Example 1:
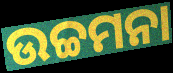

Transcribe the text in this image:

ଉଚ୍ଚମନା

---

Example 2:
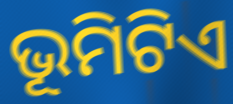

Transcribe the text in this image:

ଭୂମିଟିଏ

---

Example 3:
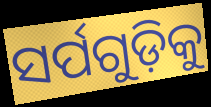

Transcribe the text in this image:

ସର୍ପଗୁଡ଼ିକୁ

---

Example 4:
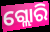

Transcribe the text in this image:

ଗ୍ଲୋରି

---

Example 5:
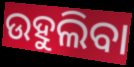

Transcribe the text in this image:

ଉହୁଲିବା